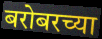
बरोबरच्या